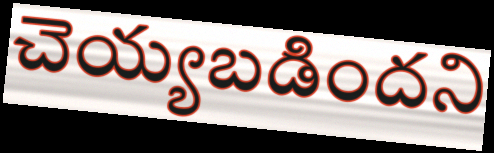
చెయ్యబడిందని